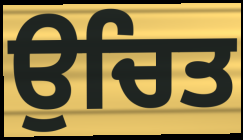
ਉਚਿਤ